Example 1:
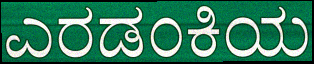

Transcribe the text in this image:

ಎರಡಂಕಿಯ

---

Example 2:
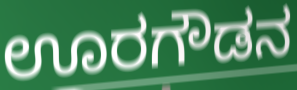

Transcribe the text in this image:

ಊರಗೌಡನ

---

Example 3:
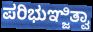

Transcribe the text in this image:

ಪರಿಭುಞ್ಜಿತ್ವಾ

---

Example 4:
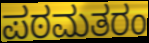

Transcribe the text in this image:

ಪಠಮತರಂ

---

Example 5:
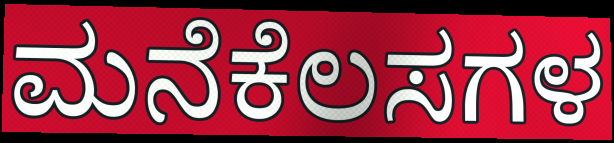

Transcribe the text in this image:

ಮನೆಕೆಲಸಗಳ